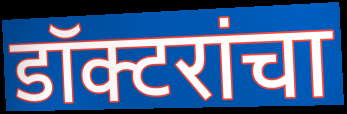
डॉक्टरांचा